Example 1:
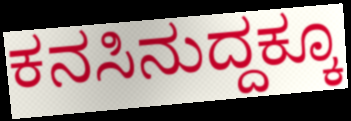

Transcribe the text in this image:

ಕನಸಿನುದ್ದಕ್ಕೂ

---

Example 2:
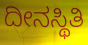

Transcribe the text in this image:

ದೀನಸ್ಥಿತಿ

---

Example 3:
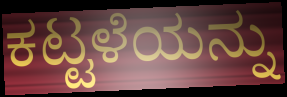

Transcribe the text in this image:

ಕಟ್ಟಳೆಯನ್ನು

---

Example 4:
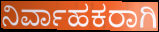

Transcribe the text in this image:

ನಿರ್ವಾಹಕರಾಗಿ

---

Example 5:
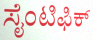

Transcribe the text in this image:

ಸೈಂಟಿಫಿಕ್